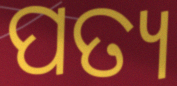
ପତ୍ୟ